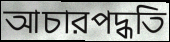
আচারপদ্ধতি